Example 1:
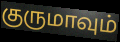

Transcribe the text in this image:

குருமாவும்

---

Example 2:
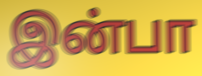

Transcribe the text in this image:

இன்பா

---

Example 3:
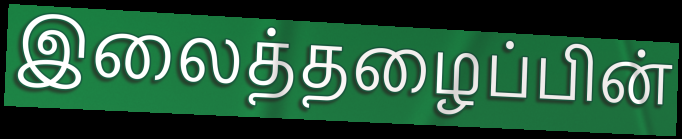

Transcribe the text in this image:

இலைத்தழைப்பின்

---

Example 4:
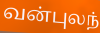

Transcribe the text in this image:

வன்புலந்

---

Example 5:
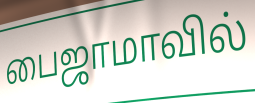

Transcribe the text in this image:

பைஜாமாவில்